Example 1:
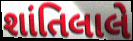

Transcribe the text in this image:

શાંતિલાલે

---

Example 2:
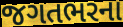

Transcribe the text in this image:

જગતભરના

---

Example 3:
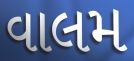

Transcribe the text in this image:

વાલમ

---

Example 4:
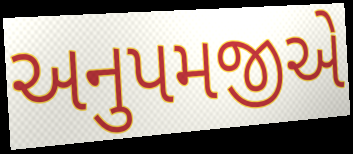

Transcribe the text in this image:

અનુપમજીએ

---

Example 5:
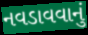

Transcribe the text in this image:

નવડાવવાનું